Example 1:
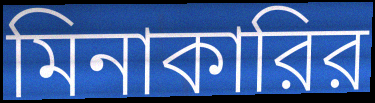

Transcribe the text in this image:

মিনাকারির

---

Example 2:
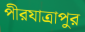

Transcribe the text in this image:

পীরযাত্রাপুর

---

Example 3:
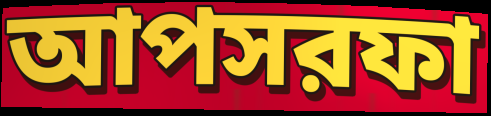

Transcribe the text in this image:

আপসরফা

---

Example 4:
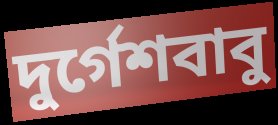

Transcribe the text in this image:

দুর্গেশবাবু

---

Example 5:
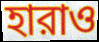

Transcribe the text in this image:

হারাও